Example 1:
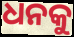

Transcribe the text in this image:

ଧନକୁ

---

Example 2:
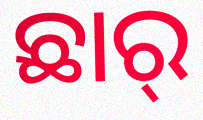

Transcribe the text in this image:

ଛାର୍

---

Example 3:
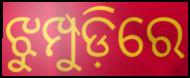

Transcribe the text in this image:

ଝୁମ୍ପୁଡ଼ିରେ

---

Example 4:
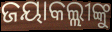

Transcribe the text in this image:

ଜୟାକଲ୍ଲୀଙ୍କୁ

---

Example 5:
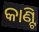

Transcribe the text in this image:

କାଣ୍ଟି